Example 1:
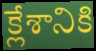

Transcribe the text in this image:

క్లేశానికి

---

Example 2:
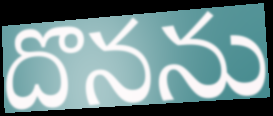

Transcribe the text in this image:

దొనను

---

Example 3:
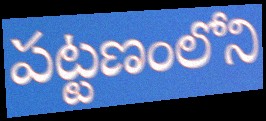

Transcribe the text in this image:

పట్టణంలోని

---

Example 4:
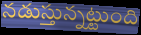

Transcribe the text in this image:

నడుస్తున్నట్టుంది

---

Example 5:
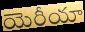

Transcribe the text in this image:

యెరీయా